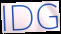
IDG